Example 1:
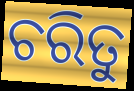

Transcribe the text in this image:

ଚରିତୁ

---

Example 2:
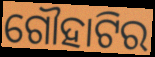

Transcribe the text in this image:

ଗୌହାଟିର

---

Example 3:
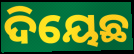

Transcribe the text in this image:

ଦିୟେଛ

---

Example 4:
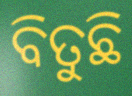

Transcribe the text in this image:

ବିତୁଛି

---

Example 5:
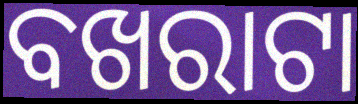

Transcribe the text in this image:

ବଖରାଟା